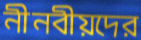
নীনবীয়দের